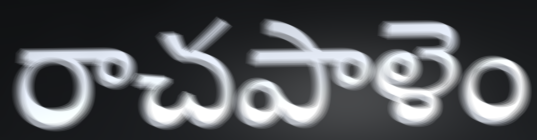
రాచపాళెం